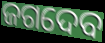
ଜଗଦେବ